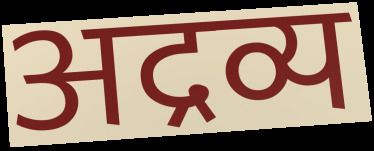
अद्रव्य